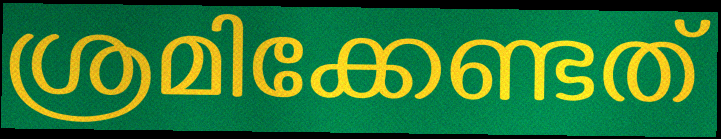
ശ്രമിക്കേണ്ടത്